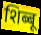
शिब्बू